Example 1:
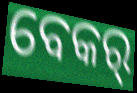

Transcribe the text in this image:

ବେକର୍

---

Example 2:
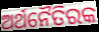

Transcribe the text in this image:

ଅର୍ଥନୈତିରକ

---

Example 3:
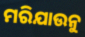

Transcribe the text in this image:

ମରିଯାଉନୁ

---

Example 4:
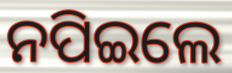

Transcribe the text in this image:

ନପିଇଲେ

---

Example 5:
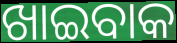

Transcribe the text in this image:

ଖାଇବାକ